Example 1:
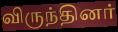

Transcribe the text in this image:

விருந்தினர்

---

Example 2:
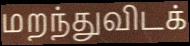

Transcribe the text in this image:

மறந்துவிடக்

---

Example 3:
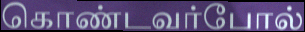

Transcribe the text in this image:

கொண்டவர்போல்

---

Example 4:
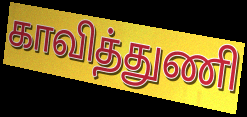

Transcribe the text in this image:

காவித்துணி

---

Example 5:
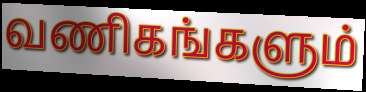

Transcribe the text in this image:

வணிகங்களும்